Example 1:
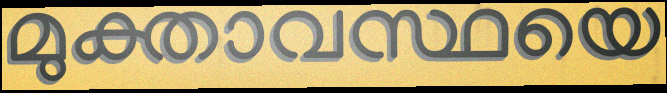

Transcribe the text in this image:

മുക്താവസ്ഥയെ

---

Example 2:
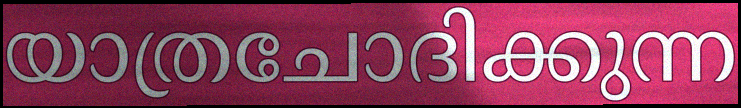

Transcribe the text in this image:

യാത്രചോദിക്കുന്ന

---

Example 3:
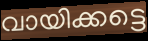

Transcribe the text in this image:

വായിക്കട്ടെ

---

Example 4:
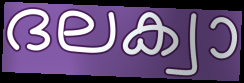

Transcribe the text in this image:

ദലക്വാ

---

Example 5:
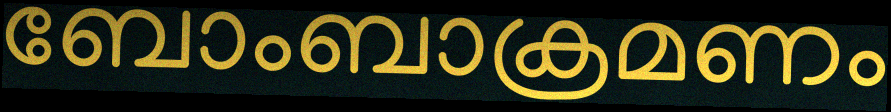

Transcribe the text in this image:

ബോംബാക്രമണം